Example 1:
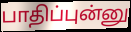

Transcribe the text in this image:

பாதிப்புன்னு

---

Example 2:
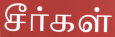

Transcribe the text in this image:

சீர்கள்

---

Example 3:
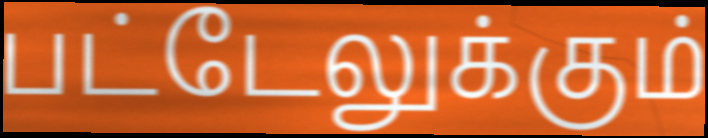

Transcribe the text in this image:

பட்டேலுக்கும்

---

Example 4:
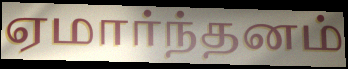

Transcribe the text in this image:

ஏமார்ந்தனம்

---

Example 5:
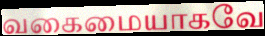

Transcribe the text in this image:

வகைமையாகவே